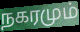
நகரமும்